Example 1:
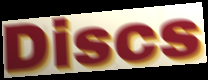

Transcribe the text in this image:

Discs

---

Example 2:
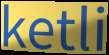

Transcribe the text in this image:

ketli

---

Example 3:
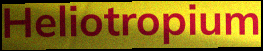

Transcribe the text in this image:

Heliotropium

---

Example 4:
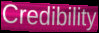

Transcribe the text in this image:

Credibility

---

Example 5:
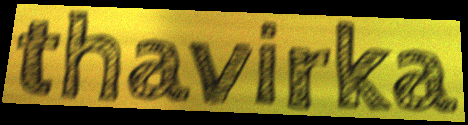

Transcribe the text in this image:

thavirka